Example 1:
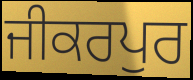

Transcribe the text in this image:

ਜੀਕਰਪੁਰ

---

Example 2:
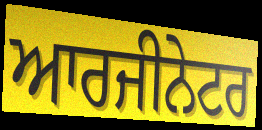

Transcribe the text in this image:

ਆਰਜੀਨੇਟਰ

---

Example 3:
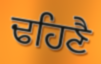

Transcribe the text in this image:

ਢਹਿਣੈ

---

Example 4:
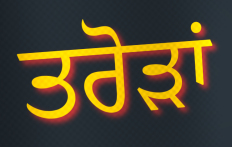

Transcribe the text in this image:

ਤਰੋੜਾਂ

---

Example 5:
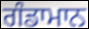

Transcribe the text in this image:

ਗੰਡਾਮਾਨ